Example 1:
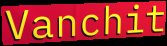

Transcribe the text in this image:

Vanchit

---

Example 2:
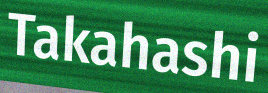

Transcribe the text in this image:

Takahashi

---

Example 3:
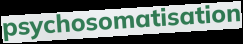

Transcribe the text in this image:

psychosomatisation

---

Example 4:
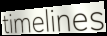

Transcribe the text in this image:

timelines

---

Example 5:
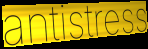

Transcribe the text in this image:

antistress